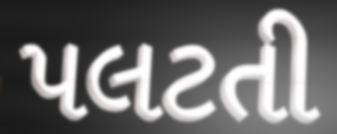
પલટતી